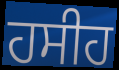
ਹਸੀਹ